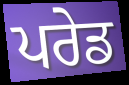
ਪਰੇਡ